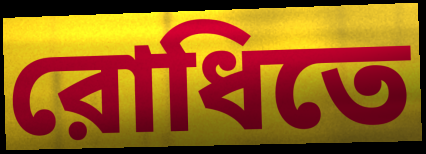
রোধিতে